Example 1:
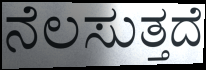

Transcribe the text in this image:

ನೆಲಸುತ್ತದೆ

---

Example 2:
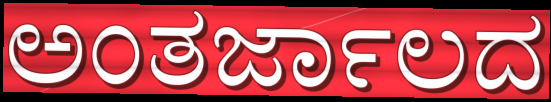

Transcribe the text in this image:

ಅಂತರ್ಜಾಲದ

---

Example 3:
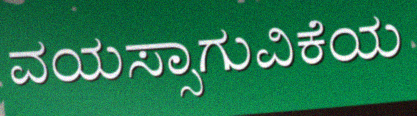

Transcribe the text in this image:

ವಯಸ್ಸಾಗುವಿಕೆಯ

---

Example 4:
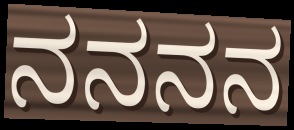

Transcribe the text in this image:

ನನನನ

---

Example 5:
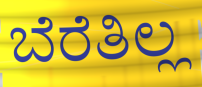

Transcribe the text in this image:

ಬೆರೆತಿಲ್ಲ